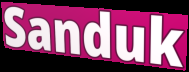
Sanduk